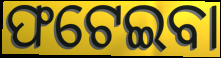
ଫଟେଇବା